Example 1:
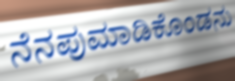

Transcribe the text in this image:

ನೆನಪುಮಾಡಿಕೊಂಡನು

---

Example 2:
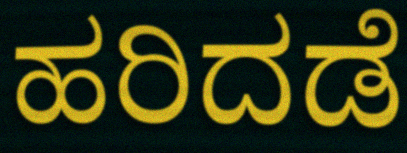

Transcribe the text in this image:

ಹರಿದಡೆ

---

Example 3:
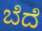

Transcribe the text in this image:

ಬೆದೆ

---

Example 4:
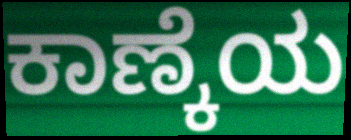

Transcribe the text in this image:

ಕಾಣ್ಕೆಯ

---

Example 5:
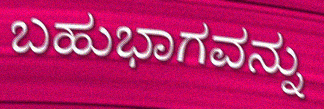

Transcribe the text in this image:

ಬಹುಭಾಗವನ್ನು